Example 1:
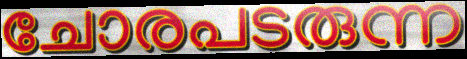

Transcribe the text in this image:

ചോരപടരുന്ന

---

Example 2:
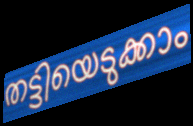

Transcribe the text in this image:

തട്ടിയെടുക്കാം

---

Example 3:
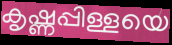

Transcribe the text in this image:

കൃഷ്ണപ്പിള്ളയെ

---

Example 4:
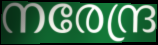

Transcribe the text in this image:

നരേന്ദ്ര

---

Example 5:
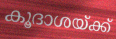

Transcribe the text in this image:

കൂദാശയ്ക്ക്